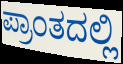
ಪ್ರಾಂತದಲ್ಲಿ